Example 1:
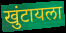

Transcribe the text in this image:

खुंटायला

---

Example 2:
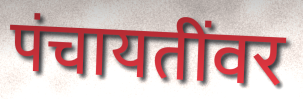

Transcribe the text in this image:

पंचायतींवर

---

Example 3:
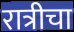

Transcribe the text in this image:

रात्रीचा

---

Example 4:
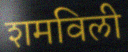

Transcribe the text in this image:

शमविली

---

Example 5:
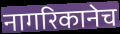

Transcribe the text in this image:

नागरिकानेच